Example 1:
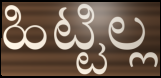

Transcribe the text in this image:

ಹಿಟ್ಟಿಲ್ಲ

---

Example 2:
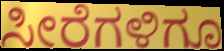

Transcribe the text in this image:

ಸೀರೆಗಳಿಗೂ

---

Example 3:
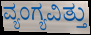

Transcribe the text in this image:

ವ್ಯಂಗ್ಯವಿತ್ತು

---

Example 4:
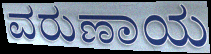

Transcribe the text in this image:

ವರುಣಾಯ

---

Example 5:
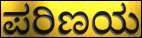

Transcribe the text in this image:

ಪರಿಣಯ